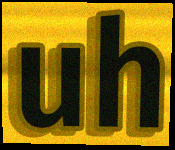
uh